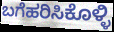
ಬಗೆಹರಿಸಿಕೊಳ್ಳಿ